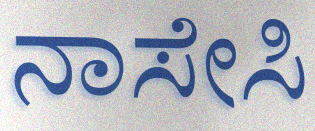
ನಾಸೇಸಿ